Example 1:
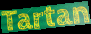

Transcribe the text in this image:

Tartan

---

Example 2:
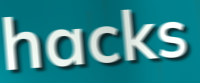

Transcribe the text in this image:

hacks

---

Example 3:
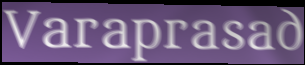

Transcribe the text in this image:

Varaprasad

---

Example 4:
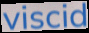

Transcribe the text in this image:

viscid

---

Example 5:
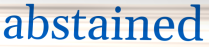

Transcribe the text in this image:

abstained